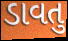
ડાવતુ